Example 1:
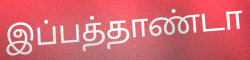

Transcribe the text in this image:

இப்பத்தாண்டா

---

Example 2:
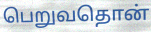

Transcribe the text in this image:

பெறுவதொன்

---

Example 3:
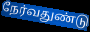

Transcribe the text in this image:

நேர்வதுண்டு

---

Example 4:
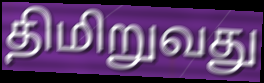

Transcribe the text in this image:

திமிறுவது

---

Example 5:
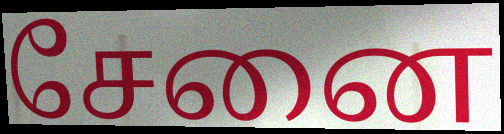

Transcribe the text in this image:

சேனை